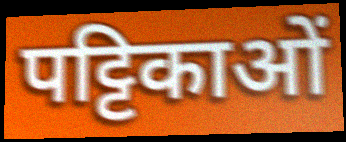
पट्टिकाओं